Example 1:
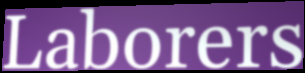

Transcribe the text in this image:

Laborers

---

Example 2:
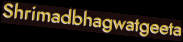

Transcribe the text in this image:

Shrimadbhagwatgeeta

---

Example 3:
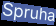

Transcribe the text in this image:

Spruha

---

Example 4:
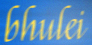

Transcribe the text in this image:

bhulei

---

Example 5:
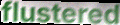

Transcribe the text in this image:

flustered